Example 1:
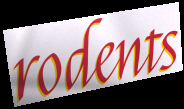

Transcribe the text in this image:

rodents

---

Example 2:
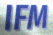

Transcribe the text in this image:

IFM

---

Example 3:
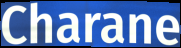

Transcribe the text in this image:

Charane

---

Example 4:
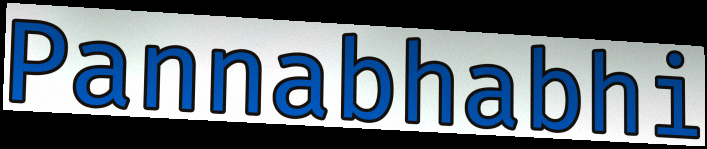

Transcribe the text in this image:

Pannabhabhi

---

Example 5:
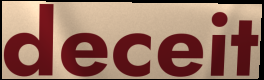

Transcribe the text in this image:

deceit